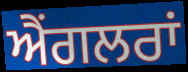
ਐਂਗਲਰਾਂ